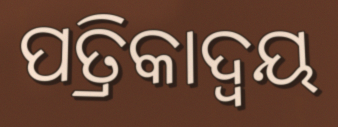
ପତ୍ରିକାଦ୍ୱୟ